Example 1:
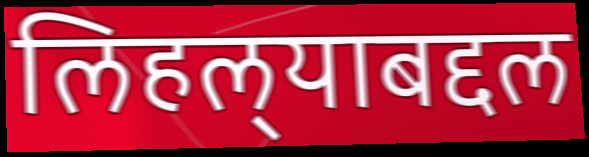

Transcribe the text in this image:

लिहल्याबद्दल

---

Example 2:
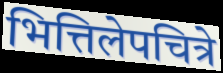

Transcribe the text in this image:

भित्तिलेपचित्रे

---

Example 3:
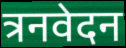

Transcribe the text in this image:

त्रनवेदन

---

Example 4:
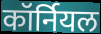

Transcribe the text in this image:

कॉर्नियल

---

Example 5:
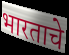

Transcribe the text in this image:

भारताचे